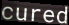
cured